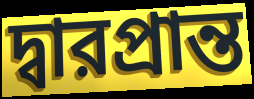
দ্বারপ্রান্ত